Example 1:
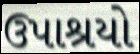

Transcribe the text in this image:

ઉપાશ્રયો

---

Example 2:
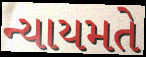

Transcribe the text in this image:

ન્યાયમતે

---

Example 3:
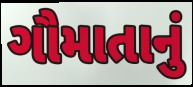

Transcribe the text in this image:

ગૌમાતાનું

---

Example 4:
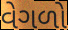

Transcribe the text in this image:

વેગળો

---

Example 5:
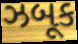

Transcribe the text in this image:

ઝબૂક